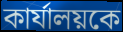
কার্যালয়কে